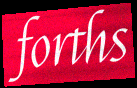
forths